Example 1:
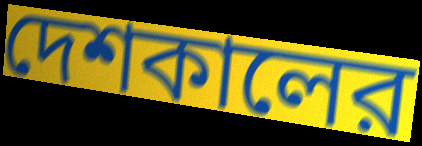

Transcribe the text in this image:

দেশকালের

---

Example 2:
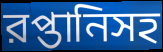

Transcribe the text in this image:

রপ্তানিসহ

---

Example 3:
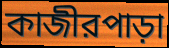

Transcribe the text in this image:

কাজীরপাড়া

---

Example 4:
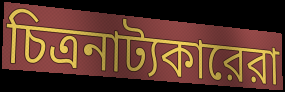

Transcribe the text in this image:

চিত্রনাট্যকারেরা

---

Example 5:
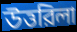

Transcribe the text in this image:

উত্তরিলা